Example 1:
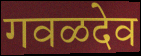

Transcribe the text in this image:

गवळदेव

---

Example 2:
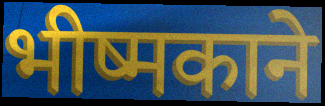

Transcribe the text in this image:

भीष्मकाने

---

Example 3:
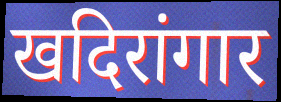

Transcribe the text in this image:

खदिरांगार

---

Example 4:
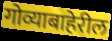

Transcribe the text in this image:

गोव्याबाहेरील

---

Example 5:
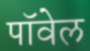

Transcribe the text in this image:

पॉवेल